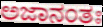
ಅಜಾನಂತಃ